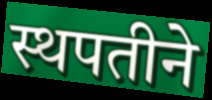
स्थपतीने